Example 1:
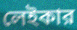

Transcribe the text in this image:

লেইকার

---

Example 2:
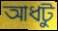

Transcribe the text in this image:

আধটু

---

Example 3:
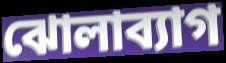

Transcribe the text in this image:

ঝোলাব্যাগ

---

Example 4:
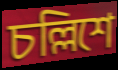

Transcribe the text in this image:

চল্লিশে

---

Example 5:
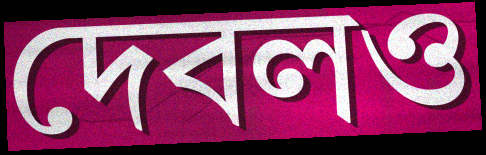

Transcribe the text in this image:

দেবলও